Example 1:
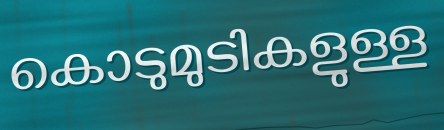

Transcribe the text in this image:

കൊടുമുടികളുള്ള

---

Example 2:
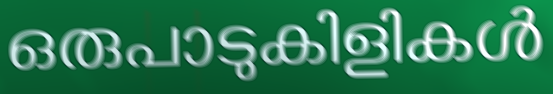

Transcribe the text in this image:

ഒരുപാടുകിളികൾ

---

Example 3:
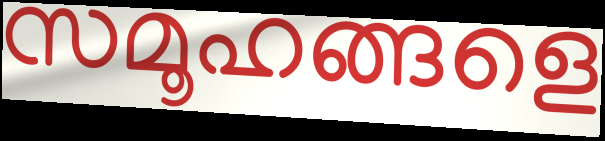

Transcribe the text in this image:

സമൂഹങ്ങളെ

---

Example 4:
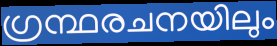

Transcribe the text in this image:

ഗ്രന്ഥരചനയിലും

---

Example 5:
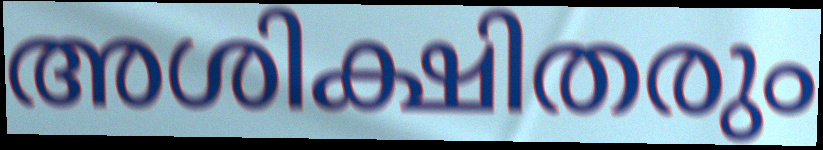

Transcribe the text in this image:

അശിക്ഷിതരും